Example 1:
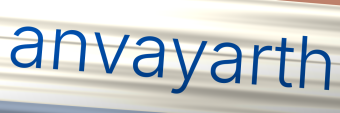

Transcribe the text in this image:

anvayarth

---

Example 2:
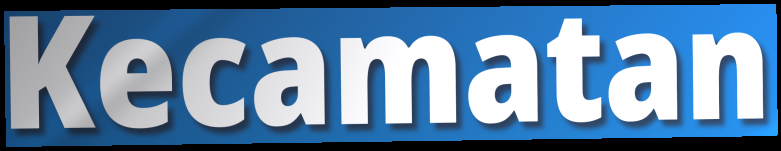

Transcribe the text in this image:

Kecamatan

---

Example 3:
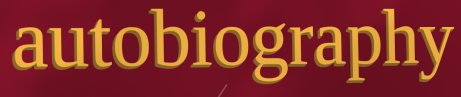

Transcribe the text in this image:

autobiography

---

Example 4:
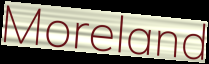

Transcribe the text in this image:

Moreland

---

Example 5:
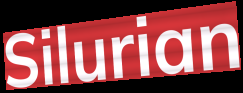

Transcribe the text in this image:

Silurian